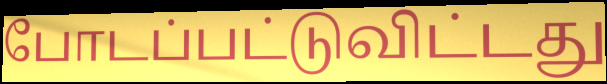
போடப்பட்டுவிட்டது